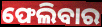
ଫେଲିବାର